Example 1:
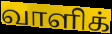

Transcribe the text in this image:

வாளிக்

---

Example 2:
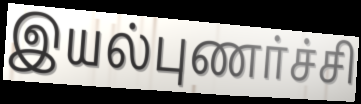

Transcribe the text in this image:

இயல்புணர்ச்சி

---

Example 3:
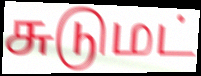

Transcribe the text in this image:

சுடுமட்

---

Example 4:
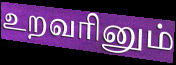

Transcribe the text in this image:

உறவரினும்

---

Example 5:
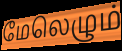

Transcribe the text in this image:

மேலெழும்